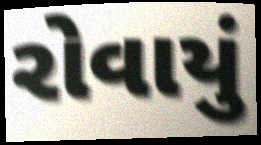
રોવાયું